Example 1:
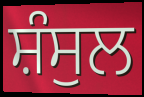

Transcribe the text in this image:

ਸ਼ੰਸੁਲ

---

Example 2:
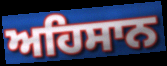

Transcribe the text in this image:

ਅਹਿਸਾਨ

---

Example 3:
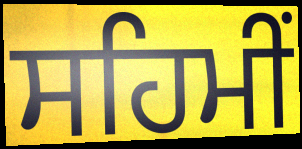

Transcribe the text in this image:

ਸਹਿਮੀਂ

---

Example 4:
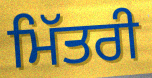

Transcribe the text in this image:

ਮਿੱਤਰੀ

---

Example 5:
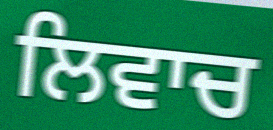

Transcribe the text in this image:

ਲਿਵਾਚ